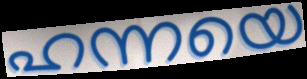
ഹന്നയെ